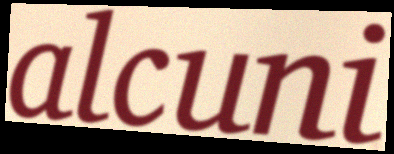
alcuni